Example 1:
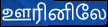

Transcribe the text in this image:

ஊரினிலே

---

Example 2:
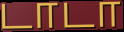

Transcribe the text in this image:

டாடா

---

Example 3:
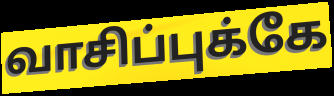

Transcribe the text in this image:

வாசிப்புக்கே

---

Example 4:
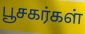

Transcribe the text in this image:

பூசகர்கள்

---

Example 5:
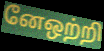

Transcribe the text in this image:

னேஒற்றி